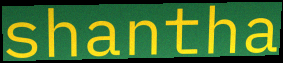
shantha